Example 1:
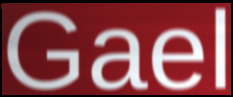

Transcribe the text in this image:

Gael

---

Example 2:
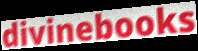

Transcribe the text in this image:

divinebooks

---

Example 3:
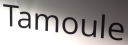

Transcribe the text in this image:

Tamoule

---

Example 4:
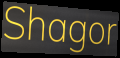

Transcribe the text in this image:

Shagor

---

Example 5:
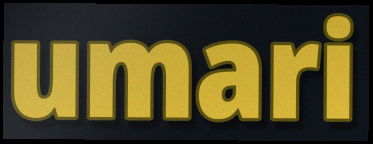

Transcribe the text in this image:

umari